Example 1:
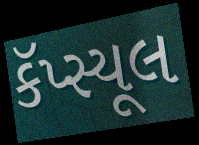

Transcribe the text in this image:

કૅપ્સ્યૂલ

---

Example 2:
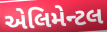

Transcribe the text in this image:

એલિમેન્ટલ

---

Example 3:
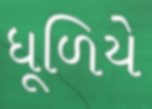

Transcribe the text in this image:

ધૂળિયે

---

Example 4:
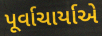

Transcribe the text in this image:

પૂર્વાચાર્યાએ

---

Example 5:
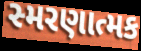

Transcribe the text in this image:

સ્મરણાત્મક